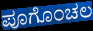
ಪೂಗೊಂಚಲ